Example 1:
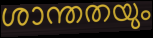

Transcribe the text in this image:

ശാന്തതയും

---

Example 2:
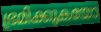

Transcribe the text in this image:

ഭ്രമിക്കുകയോ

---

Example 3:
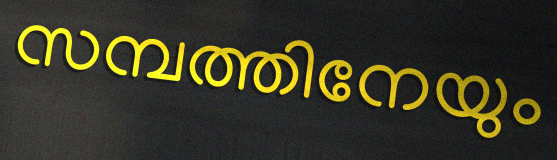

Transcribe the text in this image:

സമ്പത്തിനേയും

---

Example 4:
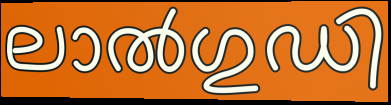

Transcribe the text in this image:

ലാൽഗുഡി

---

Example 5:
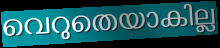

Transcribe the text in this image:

വെറുതെയാകില്ല